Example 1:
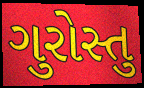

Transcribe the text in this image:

ગુરોસ્તુ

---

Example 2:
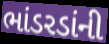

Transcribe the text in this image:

ભાંડરડાંની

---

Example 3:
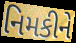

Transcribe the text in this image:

નિમકીને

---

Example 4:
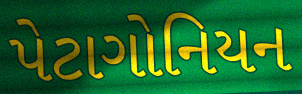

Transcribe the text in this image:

પેટાગોનિયન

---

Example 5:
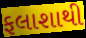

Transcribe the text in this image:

ફલાશાથી